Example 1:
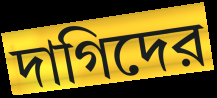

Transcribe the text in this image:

দাগিদের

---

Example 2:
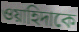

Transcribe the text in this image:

ওয়াহিদাকে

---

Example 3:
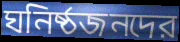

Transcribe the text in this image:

ঘনিষ্ঠজনদের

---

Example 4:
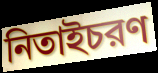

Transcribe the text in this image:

নিতাইচরণ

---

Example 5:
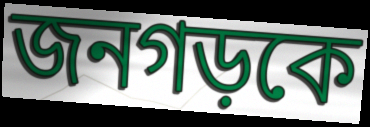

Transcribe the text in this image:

জনগড়কে